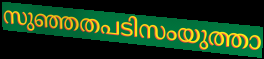
സുഞ്ഞതപടിസംയുത്താ